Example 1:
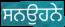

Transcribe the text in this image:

ਸਨਉਹਨੇ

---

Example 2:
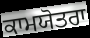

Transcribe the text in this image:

ਕਾਮਯੋਤਰਾ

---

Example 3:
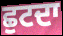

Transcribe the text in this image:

ਛੁਟਦਾ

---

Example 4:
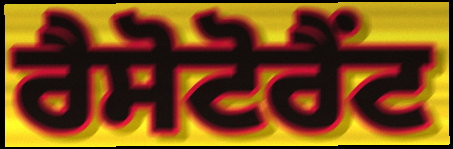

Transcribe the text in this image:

ਰੈਸੋਟੋਰੈਂਟ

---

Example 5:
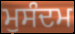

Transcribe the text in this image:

ਮੁਸੰਦਮ